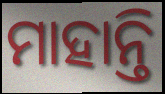
ମାହାନ୍ତି